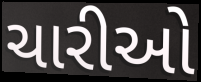
ચારીઓ